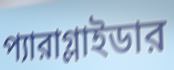
প্যারাগ্লাইডার